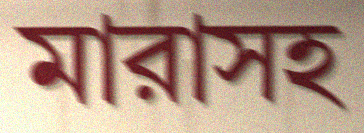
মারাসহ